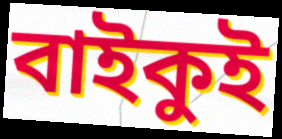
বাইকুই